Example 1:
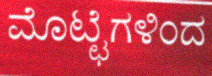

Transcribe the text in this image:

ಮೊಟ್ಟೆಗಳಿಂದ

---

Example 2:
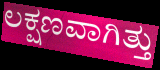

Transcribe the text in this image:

ಲಕ್ಷಣವಾಗಿತ್ತು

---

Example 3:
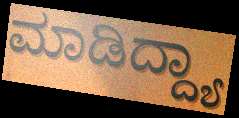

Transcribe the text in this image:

ಮಾಡಿದ್ದ್ಯಾ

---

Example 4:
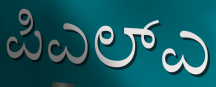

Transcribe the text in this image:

ಪಿಎಲ್ಎ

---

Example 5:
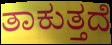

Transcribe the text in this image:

ತಾಕುತ್ತದೆ